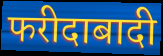
फरीदाबादी